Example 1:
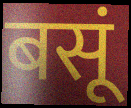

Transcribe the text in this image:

बसूं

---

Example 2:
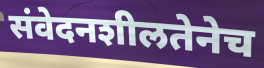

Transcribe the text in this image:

संवेदनशीलतेनेच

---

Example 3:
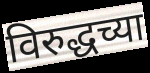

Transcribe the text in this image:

विरुद्धच्या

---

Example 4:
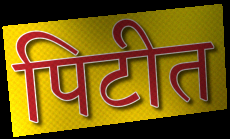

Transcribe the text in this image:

पिटीत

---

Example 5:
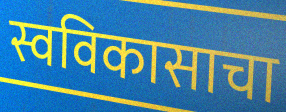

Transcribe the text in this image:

स्वविकासाचा